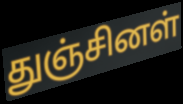
துஞ்சினள்